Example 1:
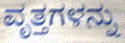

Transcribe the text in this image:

ವೃತ್ತಗಳನ್ನು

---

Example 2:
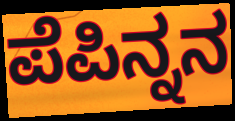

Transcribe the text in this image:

ಪೆಪಿನ್ನನ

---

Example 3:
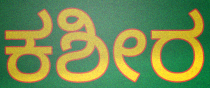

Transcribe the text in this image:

ಕಶೀರ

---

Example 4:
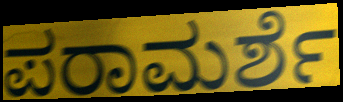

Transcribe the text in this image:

ಪರಾಮರ್ಶೆ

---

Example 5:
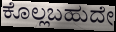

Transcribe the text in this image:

ಕೊಲ್ಲಬಹುದೇ